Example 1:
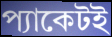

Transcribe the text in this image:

প্যাকেটই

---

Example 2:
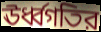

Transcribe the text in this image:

ঊর্ধ্বগতির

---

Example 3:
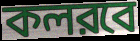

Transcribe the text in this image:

কলরবে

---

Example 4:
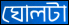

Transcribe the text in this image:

ঘোলটা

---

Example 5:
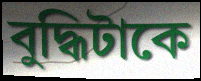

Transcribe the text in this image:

বুদ্ধিটাকে